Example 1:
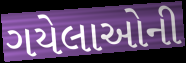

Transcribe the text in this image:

ગયેલાઓની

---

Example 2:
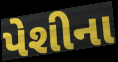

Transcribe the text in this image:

પેશીના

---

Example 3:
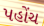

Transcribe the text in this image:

પહોંચ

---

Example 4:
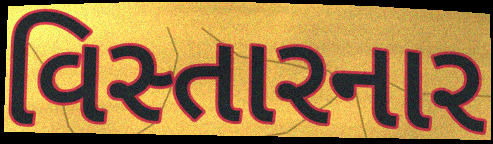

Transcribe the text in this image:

વિસ્તારનાર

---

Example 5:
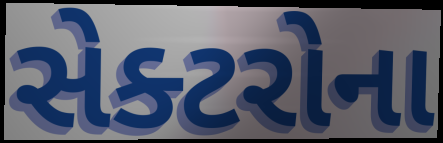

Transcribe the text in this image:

સેક્ટરોના